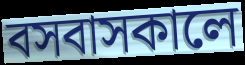
বসবাসকালে